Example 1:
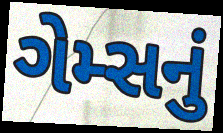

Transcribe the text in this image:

ગેમ્સનું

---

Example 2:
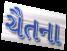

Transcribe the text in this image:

ચૈતના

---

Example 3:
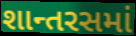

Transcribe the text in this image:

શાન્તરસમાં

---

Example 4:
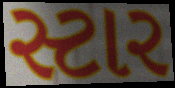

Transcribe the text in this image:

સ્ટાર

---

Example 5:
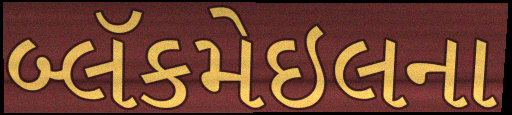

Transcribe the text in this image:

બ્લૅકમેઇલના